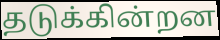
தடுக்கின்றன